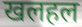
खलहल